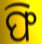
ଫି